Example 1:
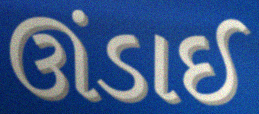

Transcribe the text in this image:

ઊંડાઈ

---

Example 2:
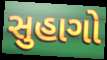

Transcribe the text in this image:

સુહાગો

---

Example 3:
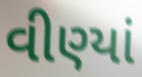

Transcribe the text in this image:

વીણ્યાં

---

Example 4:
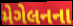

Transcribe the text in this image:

મેગેલનના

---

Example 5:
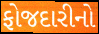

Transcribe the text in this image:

ફોજદારીનો